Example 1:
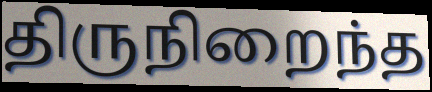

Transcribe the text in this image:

திருநிறைந்த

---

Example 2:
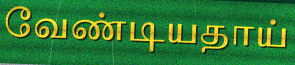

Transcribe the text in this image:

வேண்டியதாய்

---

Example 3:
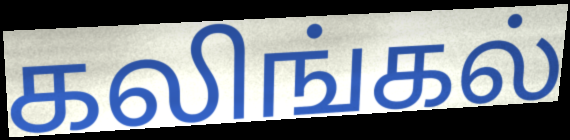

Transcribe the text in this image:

கலிங்கல்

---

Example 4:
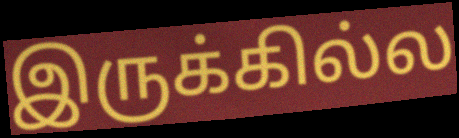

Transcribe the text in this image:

இருக்கில்ல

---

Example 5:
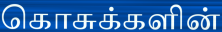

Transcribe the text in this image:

கொசுக்களின்